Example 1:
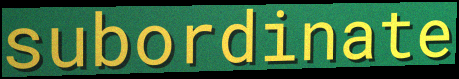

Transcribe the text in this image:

subordinate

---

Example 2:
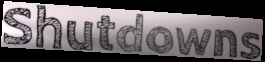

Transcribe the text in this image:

Shutdowns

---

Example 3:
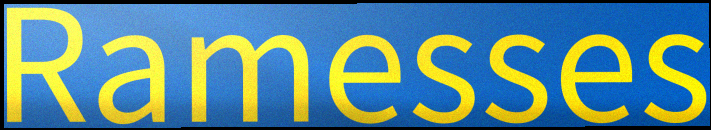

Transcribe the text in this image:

Ramesses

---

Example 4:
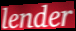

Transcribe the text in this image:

lender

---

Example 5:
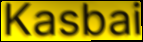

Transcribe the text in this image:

Kasbai